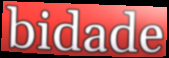
bidade